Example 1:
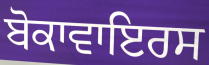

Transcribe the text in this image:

ਬੋਕਾਵਾਇਰਸ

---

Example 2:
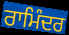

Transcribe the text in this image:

ਰਾਮਿੰਦਰ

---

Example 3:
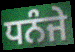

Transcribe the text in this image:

ਧਨੰਜੇ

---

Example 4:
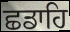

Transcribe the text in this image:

ਛਡਾਹਿ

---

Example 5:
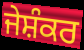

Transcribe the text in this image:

ਜੇਸ਼ੰਕਰ